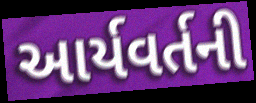
આર્યવર્તની